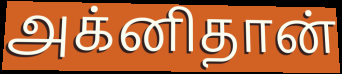
அக்னிதான்